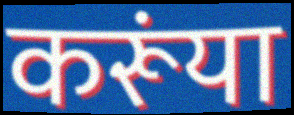
करूंया